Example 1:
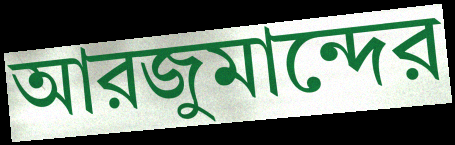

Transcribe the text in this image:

আরজুমান্দের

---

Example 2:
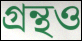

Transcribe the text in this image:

গ্রন্থও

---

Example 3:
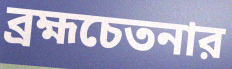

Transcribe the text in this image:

ব্রহ্মচেতনার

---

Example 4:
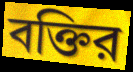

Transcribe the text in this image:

বক্তির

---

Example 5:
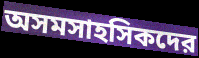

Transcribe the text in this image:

অসমসাহসিকদের